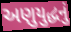
અણુયુદ્ધનું